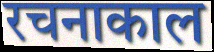
रचनाकाल